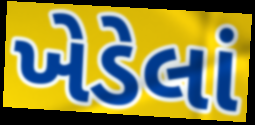
ખેડેલાં